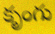
కృంగు